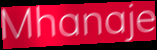
Mhanaje